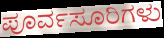
ಪೂರ್ವಸೂರಿಗಳು